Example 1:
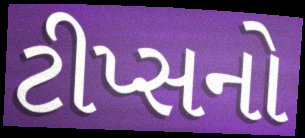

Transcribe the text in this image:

ટીપ્સનો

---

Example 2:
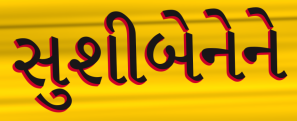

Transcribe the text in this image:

સુશીબેનેને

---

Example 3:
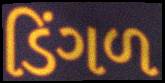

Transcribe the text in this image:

ડિંગળ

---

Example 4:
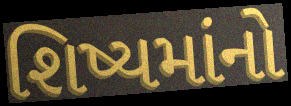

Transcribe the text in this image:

શિષ્યમાંનો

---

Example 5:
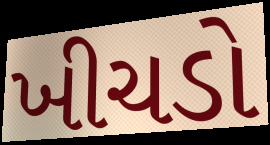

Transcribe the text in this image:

ખીચડો